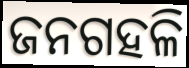
ଜନଗହଳି